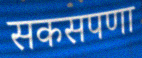
सकसपणा